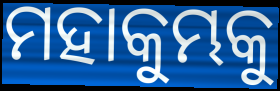
ମହାକୁମ୍ଭକୁ